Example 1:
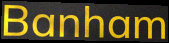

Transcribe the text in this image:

Banham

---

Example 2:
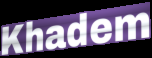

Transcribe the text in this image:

Khadem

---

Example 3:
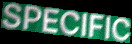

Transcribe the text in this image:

SPECIFIC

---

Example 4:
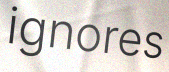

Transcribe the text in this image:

ignores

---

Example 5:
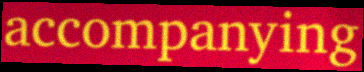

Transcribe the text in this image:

accompanying